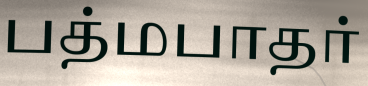
பத்மபாதர்